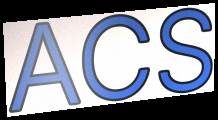
ACS